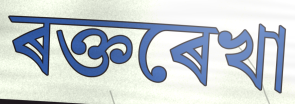
ৰক্তৰেখা